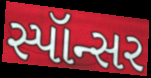
સ્પૉન્સર